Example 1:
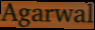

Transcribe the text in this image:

Agarwal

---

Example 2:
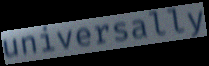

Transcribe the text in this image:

universally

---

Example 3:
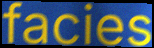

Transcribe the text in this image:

facies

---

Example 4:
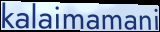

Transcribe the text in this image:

kalaimamani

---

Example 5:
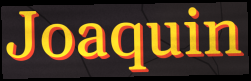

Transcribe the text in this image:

Joaquin